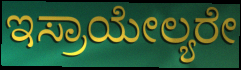
ಇಸ್ರಾಯೇಲ್ಯರೇ